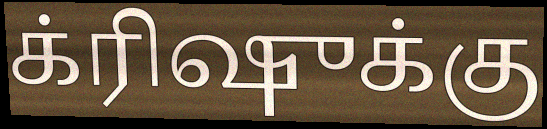
க்ரிஷுக்கு